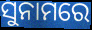
ସୁନାମରେ